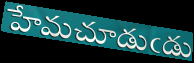
హేమచూడుఁడు